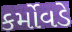
કર્મોવડે